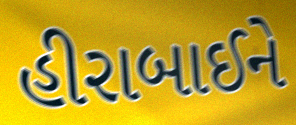
હીરાબાઈને